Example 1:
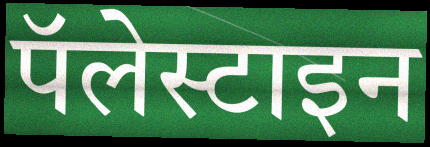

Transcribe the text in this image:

पॅलेस्टाइन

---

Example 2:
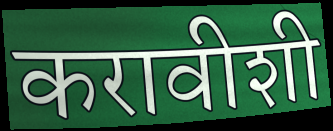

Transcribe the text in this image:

करावीशी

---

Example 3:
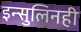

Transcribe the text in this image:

इन्सुलिनही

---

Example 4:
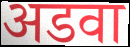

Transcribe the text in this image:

अडवा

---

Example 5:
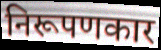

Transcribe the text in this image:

निरूपणकार